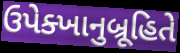
ઉપેક્ખાનુબ્રૂહિતે